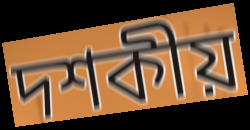
দশকীয়